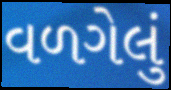
વળગેલું